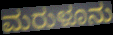
ಮರುಳೂನು